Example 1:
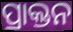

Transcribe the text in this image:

ପ୍ରାକ୍ତନ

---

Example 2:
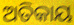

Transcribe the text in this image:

ଅତିକାୟ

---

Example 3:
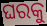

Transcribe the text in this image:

ଘରକୁ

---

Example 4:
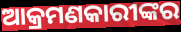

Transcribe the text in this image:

ଆକ୍ରମଣକାରୀଙ୍କର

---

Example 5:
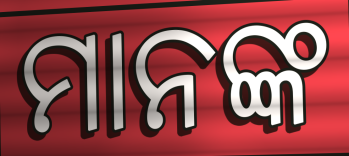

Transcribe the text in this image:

ମାନଙ୍କ